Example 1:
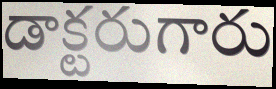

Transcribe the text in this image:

డాక్టరుగారు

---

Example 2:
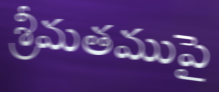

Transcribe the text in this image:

శ్రీమతముపై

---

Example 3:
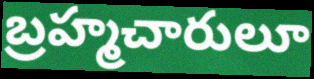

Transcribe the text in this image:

బ్రహ్మచారులూ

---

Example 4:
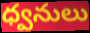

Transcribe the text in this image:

ధ్వనులు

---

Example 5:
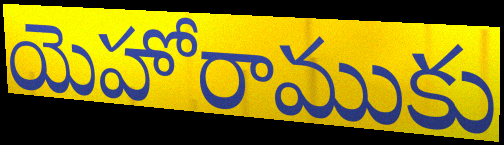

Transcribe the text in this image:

యెహోరాముకు